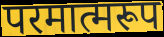
परमात्मरूप